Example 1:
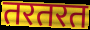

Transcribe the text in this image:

तरतरत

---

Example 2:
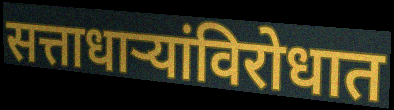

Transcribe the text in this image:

सत्ताधाऱ्यांविरोधात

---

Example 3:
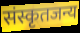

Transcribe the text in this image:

संस्कृतजन्य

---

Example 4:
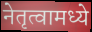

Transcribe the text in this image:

नेतृत्वामध्ये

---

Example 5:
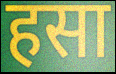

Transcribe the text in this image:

हसा